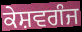
ਕੇਸ਼ਵਗੰਜ